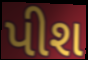
પીશ